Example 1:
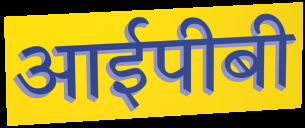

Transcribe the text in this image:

आईपीबी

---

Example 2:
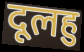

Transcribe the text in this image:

दूलहु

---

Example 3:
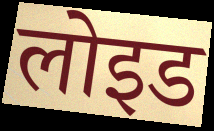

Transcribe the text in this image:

लोइड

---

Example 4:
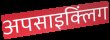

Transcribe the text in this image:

अपसाइक्लिंग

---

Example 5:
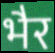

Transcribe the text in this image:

भैर